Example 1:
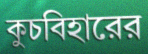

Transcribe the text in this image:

কুচবিহারের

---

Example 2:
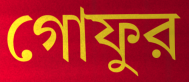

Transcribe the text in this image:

গোফুর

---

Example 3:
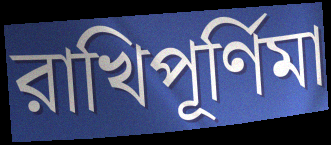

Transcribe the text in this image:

রাখিপূর্ণিমা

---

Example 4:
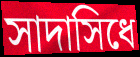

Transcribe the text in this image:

সাদাসিধে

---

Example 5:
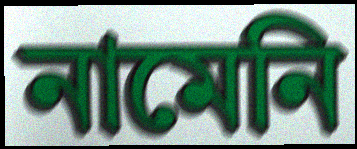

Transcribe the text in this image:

নামেনি